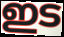
ഇട